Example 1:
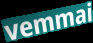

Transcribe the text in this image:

vemmai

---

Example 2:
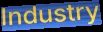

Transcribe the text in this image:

Industry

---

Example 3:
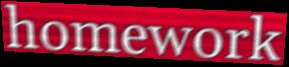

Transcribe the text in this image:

homework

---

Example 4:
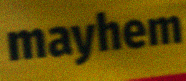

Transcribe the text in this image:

mayhem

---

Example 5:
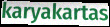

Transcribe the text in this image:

karyakartas